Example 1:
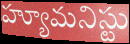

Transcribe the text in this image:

హ్యూమనిస్టు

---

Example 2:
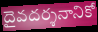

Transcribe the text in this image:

దైవదర్శనానికో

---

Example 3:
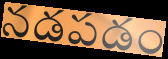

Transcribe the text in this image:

నడపడం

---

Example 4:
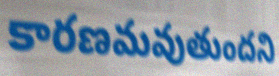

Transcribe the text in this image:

కారణమవుతుందని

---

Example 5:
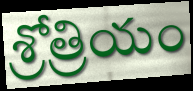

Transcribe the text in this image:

శ్రోత్రియం